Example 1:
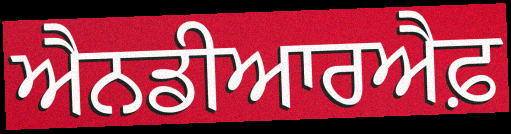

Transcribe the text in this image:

ਐਨਡੀਆਰਐਫ਼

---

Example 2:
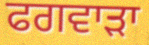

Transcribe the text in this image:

ਫਗਵਾੜਾ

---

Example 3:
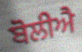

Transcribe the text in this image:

ਬੋਲੀਐ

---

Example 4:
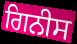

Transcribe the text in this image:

ਗਿਨੀਸ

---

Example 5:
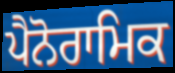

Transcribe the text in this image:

ਪੈਨੋਰਾਮਿਕ